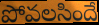
పోవలసిందే